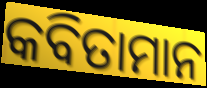
କବିତାମାନ